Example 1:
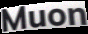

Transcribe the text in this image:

Muon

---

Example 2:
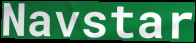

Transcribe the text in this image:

Navstar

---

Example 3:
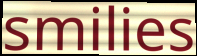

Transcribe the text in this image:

smilies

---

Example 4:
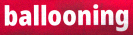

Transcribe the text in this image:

ballooning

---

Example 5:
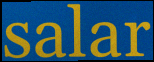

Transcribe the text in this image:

salar